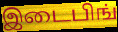
இடைபிங்